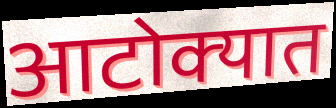
आटोक्‍यात